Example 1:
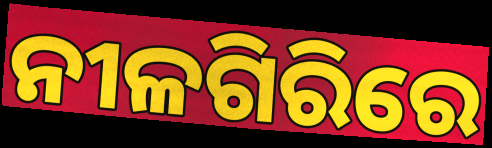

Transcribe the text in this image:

ନୀଳଗିରିରେ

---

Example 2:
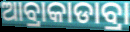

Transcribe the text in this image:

ଆବ୍ରାକାଡାବ୍ରା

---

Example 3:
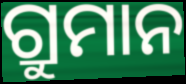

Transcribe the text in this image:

ଗ୍ରୁମାନ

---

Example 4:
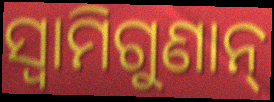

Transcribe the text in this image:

ସ୍ୱାମିଗୁଣାନ୍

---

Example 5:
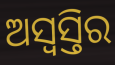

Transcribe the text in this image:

ଅସ୍ୱସ୍ତିର